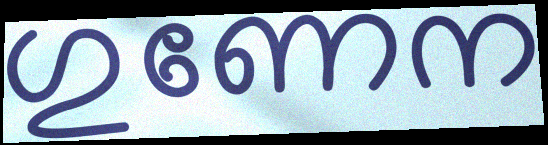
ഗുണേന